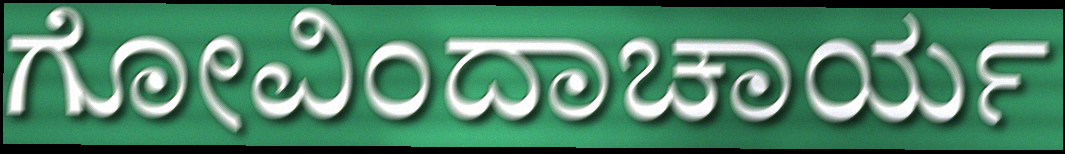
ಗೋವಿಂದಾಚಾರ್ಯ